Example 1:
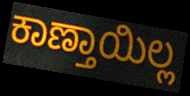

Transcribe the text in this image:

ಕಾಣ್ತಾಯಿಲ್ಲ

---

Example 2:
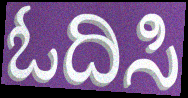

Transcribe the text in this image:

ಓದಿಸಿ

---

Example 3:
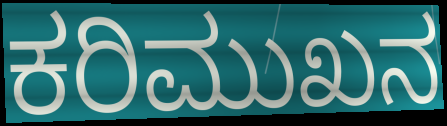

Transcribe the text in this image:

ಕರಿಮುಖನ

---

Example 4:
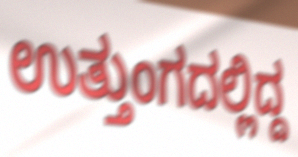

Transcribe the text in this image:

ಉತ್ತುಂಗದಲ್ಲಿದ್ದ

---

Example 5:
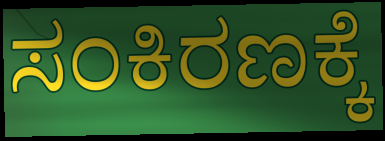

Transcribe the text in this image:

ಸಂಕಿರಣಕ್ಕೆ